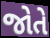
જોતે